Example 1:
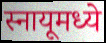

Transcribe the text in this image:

स्नायूमध्ये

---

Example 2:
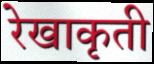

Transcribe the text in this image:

रेखाकृती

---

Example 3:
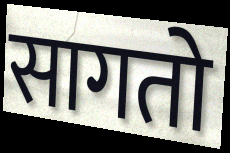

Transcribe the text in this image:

सागतो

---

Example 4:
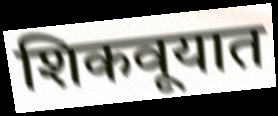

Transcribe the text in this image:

शिकवूयात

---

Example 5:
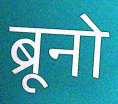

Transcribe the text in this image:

ब्रूनो